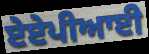
ਏਏਪੀਆਈ